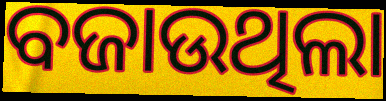
ବଜାଉଥିଲା